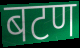
बटण